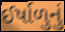
ઈર્ષાળુનું